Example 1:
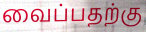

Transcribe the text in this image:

வைப்பதற்கு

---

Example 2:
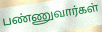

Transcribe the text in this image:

பண்ணுவார்கள்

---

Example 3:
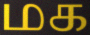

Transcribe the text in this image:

மக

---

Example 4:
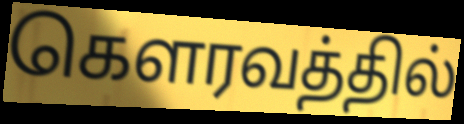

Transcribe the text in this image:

கௌரவத்தில்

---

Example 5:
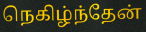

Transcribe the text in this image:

நெகிழ்ந்தேன்